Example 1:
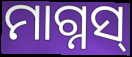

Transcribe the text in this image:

ମାଗ୍ନସ୍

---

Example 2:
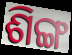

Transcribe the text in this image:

ଶିଙ୍ଗ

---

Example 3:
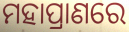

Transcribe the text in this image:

ମହାପ୍ରାଣରେ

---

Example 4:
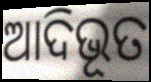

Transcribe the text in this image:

ଆଦିଭୂତ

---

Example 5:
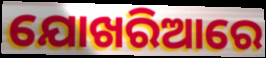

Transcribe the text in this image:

ଯୋଖରିଆରେ